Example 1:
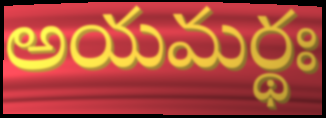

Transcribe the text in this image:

అయమర్థః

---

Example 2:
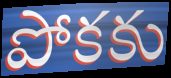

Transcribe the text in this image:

పోకకు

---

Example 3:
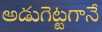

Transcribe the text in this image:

అడుగెట్టగానే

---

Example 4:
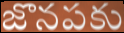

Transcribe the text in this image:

జొనపకు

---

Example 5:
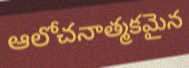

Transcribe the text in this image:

ఆలోచనాత్మకమైన